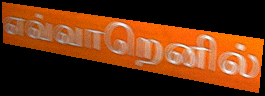
எவ்வாறெனில்